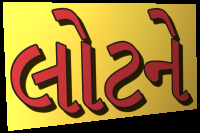
લોટને